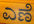
ಎಣೆ